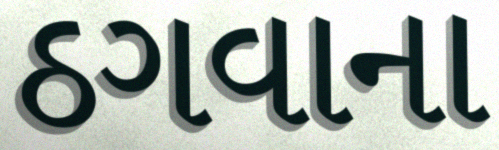
ઠગવાના